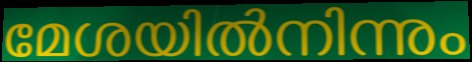
മേശയിൽനിന്നും